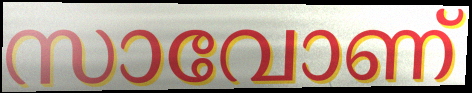
സാവോണ്